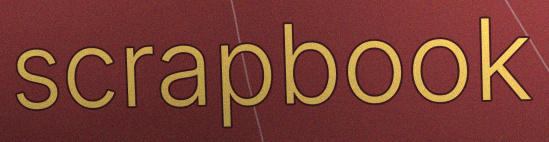
scrapbook